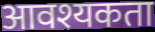
आवश्यकता